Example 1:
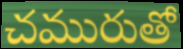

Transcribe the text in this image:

చమురుతో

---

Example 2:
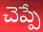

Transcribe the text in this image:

చెప్పే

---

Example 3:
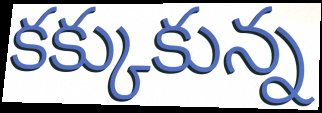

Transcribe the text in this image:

కక్కుకున్న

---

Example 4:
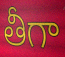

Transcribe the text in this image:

తీగా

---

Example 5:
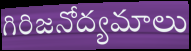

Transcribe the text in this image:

గిరిజనోద్యమాలు